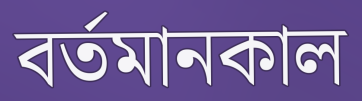
বর্তমানকাল